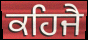
ਕਹਿਜੈ